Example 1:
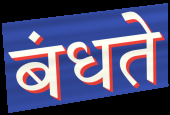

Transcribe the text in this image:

बंधते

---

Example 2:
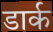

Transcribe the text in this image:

डार्क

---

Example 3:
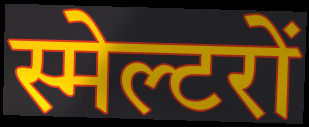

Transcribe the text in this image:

स्मेल्टरों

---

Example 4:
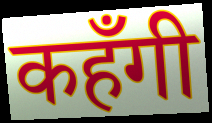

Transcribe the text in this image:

कहँगी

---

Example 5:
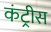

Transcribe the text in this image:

कंट्रीस